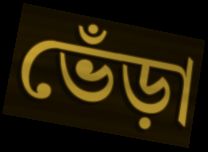
ভেঁড়া